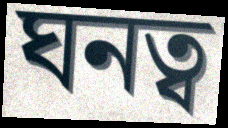
ঘনত্ব